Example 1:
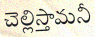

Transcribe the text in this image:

చెల్లిస్తామనీ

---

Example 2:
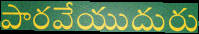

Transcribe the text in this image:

పారవేయుదురు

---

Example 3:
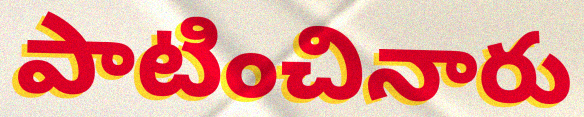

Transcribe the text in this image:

పాటించినారు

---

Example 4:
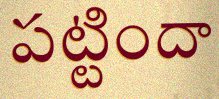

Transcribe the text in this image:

పట్టిందా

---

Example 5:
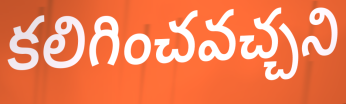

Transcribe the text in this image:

కలిగించవచ్చని